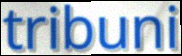
tribuni